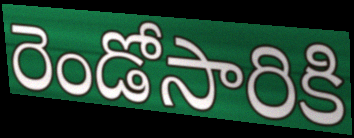
రెండోసారికి